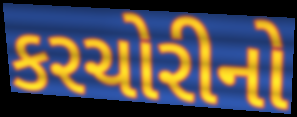
કરચોરીનો